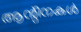
ആന്റിനകൾ